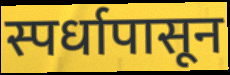
स्पर्धापासून